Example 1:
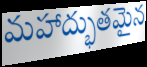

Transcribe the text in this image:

మహాద్భుతమైన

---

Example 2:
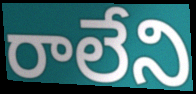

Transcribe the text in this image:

రాలేని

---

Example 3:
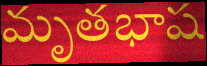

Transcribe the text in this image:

మృతభాష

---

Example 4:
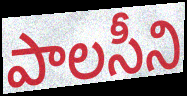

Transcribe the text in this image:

పాలసీని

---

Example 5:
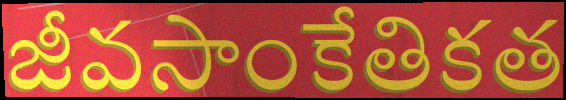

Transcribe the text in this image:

జీవసాంకేతికత